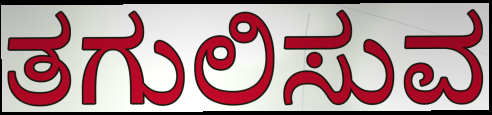
ತಗುಲಿಸುವ